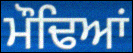
ਮੌਢਿਆਂ